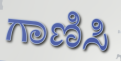
ಗಾಣಿಸಿ